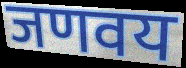
जणवय